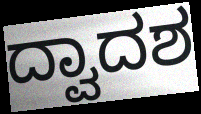
ದ್ವಾದಶ